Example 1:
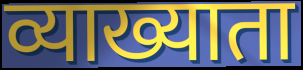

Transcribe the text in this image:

व्‍याख्‍याता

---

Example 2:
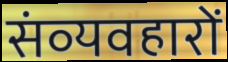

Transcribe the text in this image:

संव्‍यवहारों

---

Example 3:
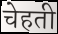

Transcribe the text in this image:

चेहती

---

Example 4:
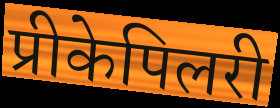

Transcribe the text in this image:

प्रीकेपिलरी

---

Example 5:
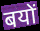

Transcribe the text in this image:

बयों